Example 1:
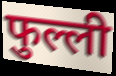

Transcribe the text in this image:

फुल्ली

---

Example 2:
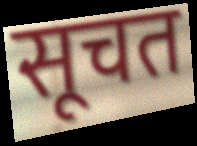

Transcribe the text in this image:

सूचत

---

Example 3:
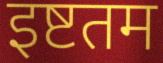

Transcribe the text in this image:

इष्टतम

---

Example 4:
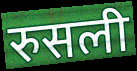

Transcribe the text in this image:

रुसली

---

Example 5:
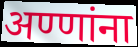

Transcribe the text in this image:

अण्णांना